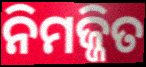
ନିମଜ୍ଜିତ